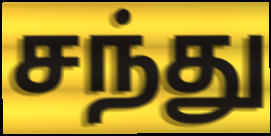
சந்து